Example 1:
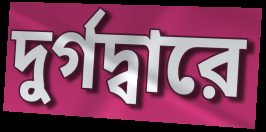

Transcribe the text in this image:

দুর্গদ্বারে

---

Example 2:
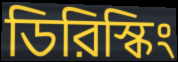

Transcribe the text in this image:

ডিরিস্কিং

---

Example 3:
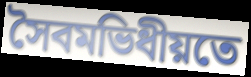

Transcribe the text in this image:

সৈবমভিধীয়তে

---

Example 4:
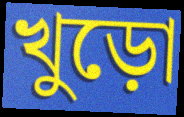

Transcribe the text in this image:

খুড়ো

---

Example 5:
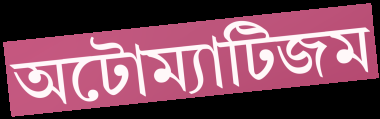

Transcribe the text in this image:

অটোম্যাটিজম